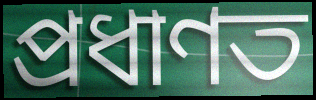
প্রধাণত